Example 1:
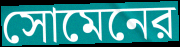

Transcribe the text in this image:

সোমেনের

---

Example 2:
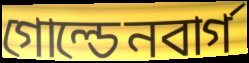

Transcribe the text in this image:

গোল্ডেনবার্গ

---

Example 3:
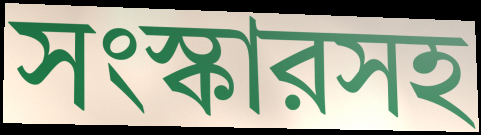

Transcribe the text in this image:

সংস্কারসহ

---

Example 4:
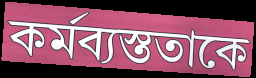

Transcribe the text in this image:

কর্মব্যস্ততাকে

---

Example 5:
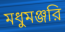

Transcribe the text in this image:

মধুমঞ্জরি